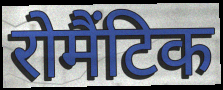
रोमैंटिक